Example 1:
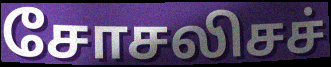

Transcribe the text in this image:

சோசலிசச்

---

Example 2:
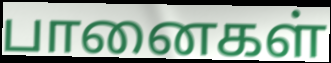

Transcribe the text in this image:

பானைகள்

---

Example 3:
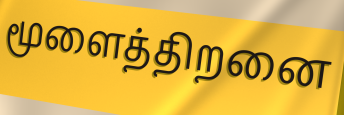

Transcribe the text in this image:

மூளைத்திறனை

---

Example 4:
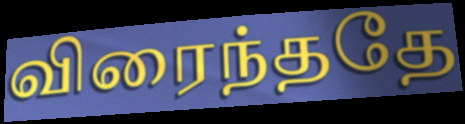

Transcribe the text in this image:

விரைந்ததே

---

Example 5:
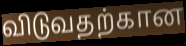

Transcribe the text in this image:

விடுவதற்கான